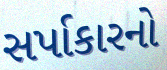
સર્પાકારનો